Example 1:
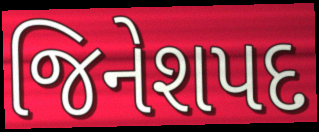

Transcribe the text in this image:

જિનેશપદ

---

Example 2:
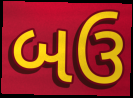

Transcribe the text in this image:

બઉ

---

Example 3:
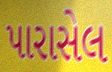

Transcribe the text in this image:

પારાસેલ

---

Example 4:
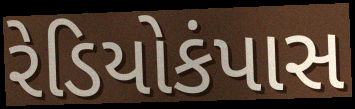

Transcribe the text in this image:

રેડિયોકંપાસ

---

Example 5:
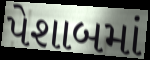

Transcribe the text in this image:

પેશાબમાં